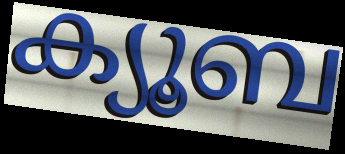
ക്യൂബ